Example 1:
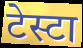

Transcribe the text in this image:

टेस्टा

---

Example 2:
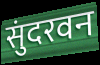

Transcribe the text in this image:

सुंदरवन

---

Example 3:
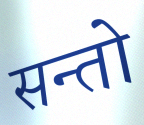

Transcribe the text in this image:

सन्तो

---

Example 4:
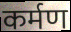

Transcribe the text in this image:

कर्मण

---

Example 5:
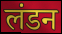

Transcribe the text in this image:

लंडन